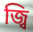
জ্বি